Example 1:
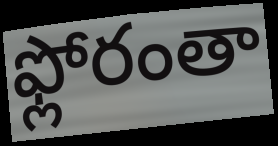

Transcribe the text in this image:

ఫ్లోరంతా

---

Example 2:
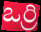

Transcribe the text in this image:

ఒర్రి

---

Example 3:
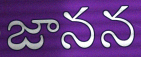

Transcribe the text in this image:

జానన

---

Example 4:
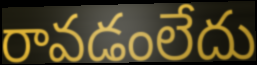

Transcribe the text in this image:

రావడంలేదు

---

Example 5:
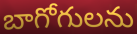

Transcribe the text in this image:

బాగోగులను